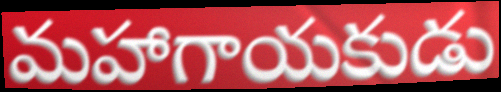
మహాగాయకుడు